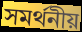
সমর্থনীয়